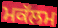
ਮਕੱਲਮ